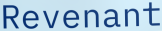
Revenant